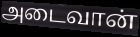
அடைவான்